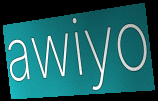
awiyo